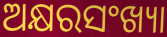
ଅକ୍ଷରସଂଖ୍ୟା